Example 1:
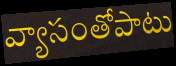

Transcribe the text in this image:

వ్యాసంతోపాటు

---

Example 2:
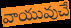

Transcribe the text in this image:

వాయువుచే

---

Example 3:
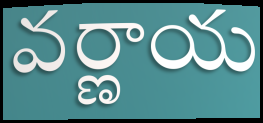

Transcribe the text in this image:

వర్ణాయ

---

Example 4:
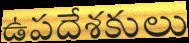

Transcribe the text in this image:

ఉపదేశకులు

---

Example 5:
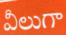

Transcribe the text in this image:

వీలుగా